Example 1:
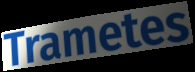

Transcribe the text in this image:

Trametes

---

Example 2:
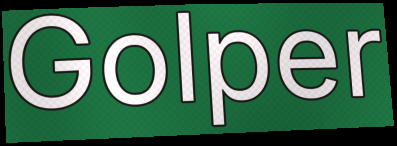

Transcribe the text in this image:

Golper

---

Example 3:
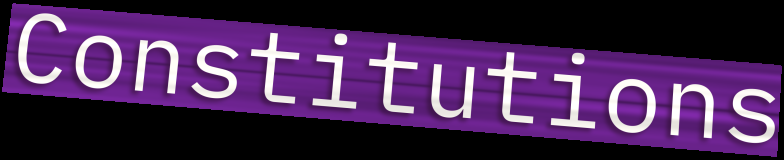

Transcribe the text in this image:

Constitutions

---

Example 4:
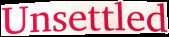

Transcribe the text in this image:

Unsettled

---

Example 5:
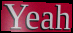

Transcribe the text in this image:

Yeah